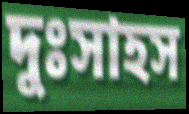
দুঃসাহস